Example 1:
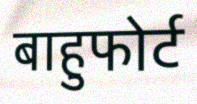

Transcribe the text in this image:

बाहुफोर्ट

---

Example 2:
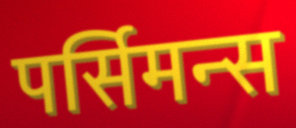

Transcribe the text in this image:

पर्सिमन्स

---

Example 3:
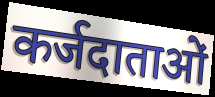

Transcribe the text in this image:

कर्जदाताओं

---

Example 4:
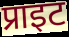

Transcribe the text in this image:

प्राइट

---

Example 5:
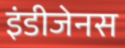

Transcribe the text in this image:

इंडीजेनस